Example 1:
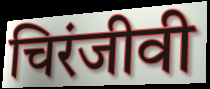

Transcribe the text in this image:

चिरंजीवी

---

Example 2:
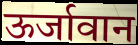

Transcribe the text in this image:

ऊर्जावान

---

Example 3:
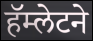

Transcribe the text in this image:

हॅम्लेटने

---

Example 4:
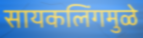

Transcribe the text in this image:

सायकलिंगमुळे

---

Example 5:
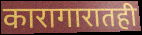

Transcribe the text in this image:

कारागारातही